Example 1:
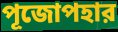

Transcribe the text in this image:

পূজোপহার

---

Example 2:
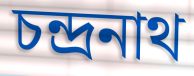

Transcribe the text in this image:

চন্দ্রনাথ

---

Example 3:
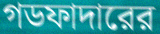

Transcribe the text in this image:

গডফাদারের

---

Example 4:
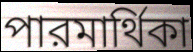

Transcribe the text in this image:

পারমার্থিকা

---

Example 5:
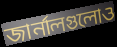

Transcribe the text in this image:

জার্নালগুলোও